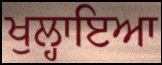
ਖੁਲ੍ਹਾਇਆ